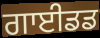
ਗਾਈਡਡ